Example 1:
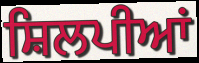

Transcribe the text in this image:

ਸ਼ਿਲਪੀਆਂ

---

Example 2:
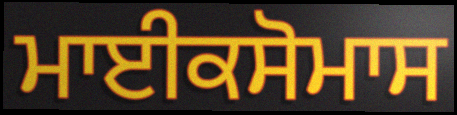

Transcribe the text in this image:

ਮਾਈਕਸੋਮਾਸ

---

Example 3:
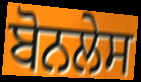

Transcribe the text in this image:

ਬੋਨਲੇਸ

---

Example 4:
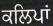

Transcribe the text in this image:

ਕਲਿਪਾਂ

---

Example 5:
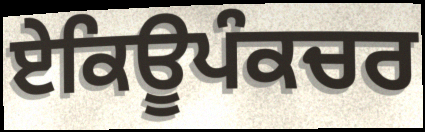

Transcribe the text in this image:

ਏਕਿਊਪੰਕਚਰ